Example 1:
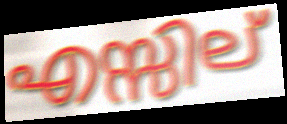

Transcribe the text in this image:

എസ്സില്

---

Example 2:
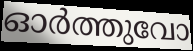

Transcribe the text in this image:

ഓർത്തുവോ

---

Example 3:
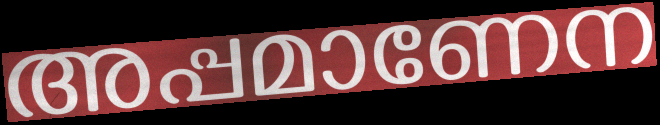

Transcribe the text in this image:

അപ്പമാണേന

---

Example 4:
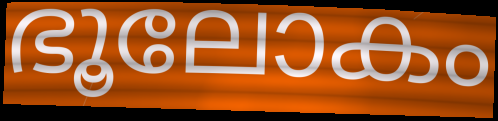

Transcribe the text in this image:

ഭൂലോകം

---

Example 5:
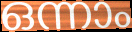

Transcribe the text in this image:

ഒന്നാം